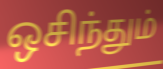
ஒசிந்தும்